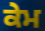
ਕੇਮ